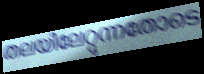
തലയിലേറ്റുന്നതോടെ